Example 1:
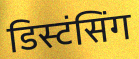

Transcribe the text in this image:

डिस्टंसिंग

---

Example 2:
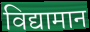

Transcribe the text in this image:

विद्यामान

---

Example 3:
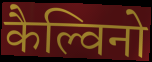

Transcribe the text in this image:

कैल्विनो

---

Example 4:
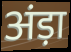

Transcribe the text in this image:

अंड़ा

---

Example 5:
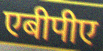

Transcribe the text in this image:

एबीपीए